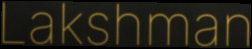
Lakshman